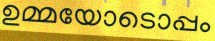
ഉമ്മയോടൊപ്പം